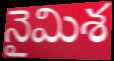
నైమిశ